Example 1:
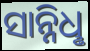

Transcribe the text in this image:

ସାନ୍ନିଧୢ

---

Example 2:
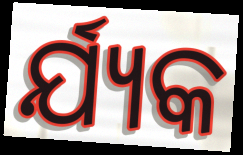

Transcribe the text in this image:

ର୍ଯ୍ୟକ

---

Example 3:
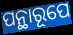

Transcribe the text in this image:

ପନ୍ଥାରୂପେ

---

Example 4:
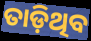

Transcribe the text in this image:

ତାଡ଼ିଥିବ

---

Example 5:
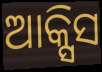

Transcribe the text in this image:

ଆକ୍ସିସ